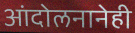
आंदोलनानेही